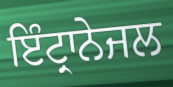
ਇੰਟ੍ਰਾਨੇਜਲ